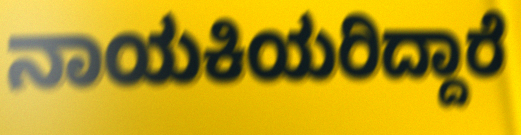
ನಾಯಕಿಯರಿದ್ದಾರೆ